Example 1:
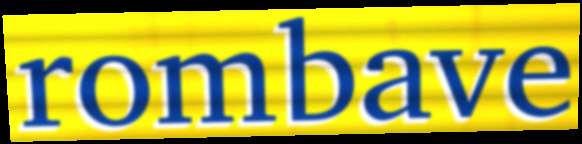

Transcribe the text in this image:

rombave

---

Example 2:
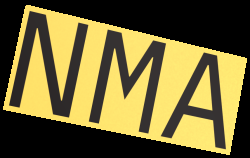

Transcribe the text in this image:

NMA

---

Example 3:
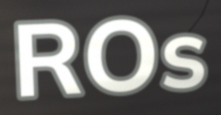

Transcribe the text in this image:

ROs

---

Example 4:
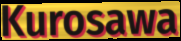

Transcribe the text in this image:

Kurosawa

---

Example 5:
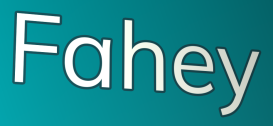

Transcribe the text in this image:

Fahey